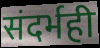
संदर्भही